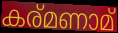
കര്മണാമ്